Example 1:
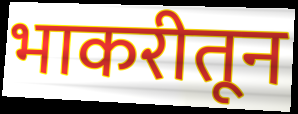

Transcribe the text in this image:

भाकरीतून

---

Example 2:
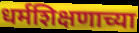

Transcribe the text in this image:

धर्मशिक्षणाच्या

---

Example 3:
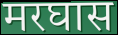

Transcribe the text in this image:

मरघास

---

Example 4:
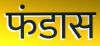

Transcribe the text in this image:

फंडास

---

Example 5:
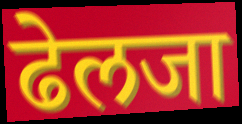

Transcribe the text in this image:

ढेलजा